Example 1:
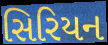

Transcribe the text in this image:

સિરિયન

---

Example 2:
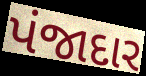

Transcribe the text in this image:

પંજાદાર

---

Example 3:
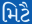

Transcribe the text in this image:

મિટૈ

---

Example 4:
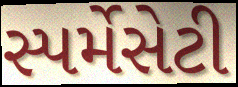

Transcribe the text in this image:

સ્પર્મેસેટી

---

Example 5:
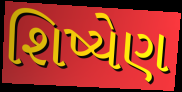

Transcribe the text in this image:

શિષ્યેણ